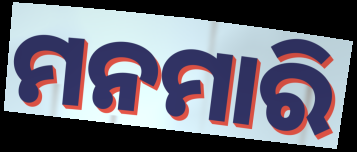
ମନମାରି